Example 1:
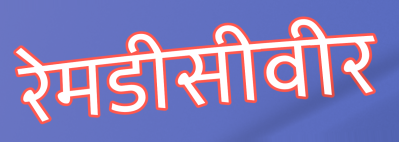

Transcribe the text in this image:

रेमडीसीवीर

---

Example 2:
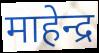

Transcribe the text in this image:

माहेन्द्र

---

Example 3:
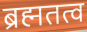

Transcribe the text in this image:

ब्रह्मतत्व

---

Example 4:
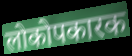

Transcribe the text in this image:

लोकोपकारक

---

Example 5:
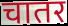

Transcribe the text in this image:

चातर